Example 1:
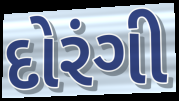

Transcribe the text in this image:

દોરંગી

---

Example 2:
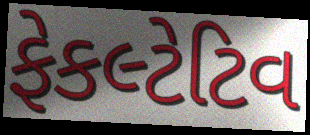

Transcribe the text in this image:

ફેકલ્ટેટિવ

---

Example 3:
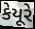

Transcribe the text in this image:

કેયૂરે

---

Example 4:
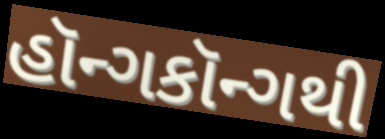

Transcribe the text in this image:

હૉન્ગકૉન્ગથી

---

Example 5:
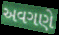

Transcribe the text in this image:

અવગણે